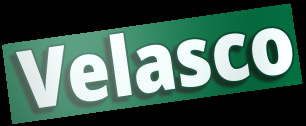
Velasco